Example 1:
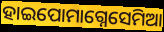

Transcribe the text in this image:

ହାଇପୋମାଗ୍ନେସେମିଆ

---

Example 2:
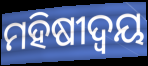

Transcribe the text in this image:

ମହିଷୀଦ୍ୱୟ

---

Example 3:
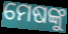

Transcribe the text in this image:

ମେଷଙ୍କୁ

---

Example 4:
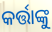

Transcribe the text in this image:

କର୍ତ୍ତାଙ୍କୁ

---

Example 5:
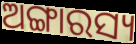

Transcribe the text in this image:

ଅଙ୍ଗାରସ୍ୟ